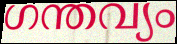
ഗന്തവ്യം